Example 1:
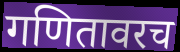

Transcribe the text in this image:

गणितावरच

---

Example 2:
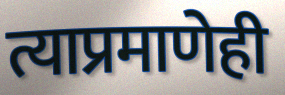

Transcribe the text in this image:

त्याप्रमाणेही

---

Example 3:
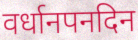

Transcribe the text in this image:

वर्धानपनदिन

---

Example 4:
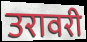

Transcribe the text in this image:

उरावरी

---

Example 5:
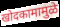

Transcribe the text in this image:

खोदकामामुळे